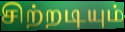
சிற்றடியும்